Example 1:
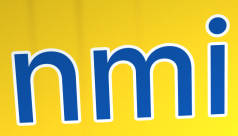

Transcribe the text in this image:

nmi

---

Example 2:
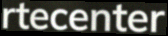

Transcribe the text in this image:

rtecenter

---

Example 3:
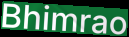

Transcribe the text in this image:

Bhimrao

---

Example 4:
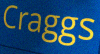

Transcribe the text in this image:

Craggs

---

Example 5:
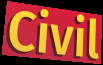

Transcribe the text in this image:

Civil